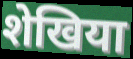
शेखिया